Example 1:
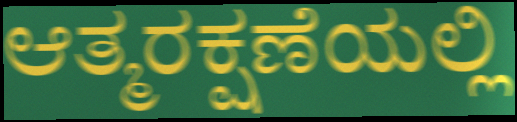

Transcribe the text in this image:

ಆತ್ಮರಕ್ಷಣೆಯಲ್ಲಿ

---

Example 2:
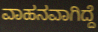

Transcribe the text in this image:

ವಾಹನವಾಗಿದ್ದೆ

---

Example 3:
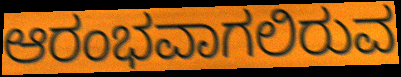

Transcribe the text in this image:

ಆರಂಭವಾಗಲಿರುವ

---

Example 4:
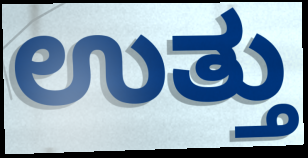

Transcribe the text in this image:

ಉತ್ತು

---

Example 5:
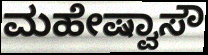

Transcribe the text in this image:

ಮಹೇಷ್ವಾಸೌ